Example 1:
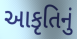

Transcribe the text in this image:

આકૃતિનું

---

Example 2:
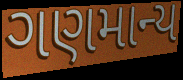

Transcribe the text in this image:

ગણમાન્ય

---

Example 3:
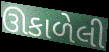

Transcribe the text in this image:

ઊકાળેલી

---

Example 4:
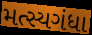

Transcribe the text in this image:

મત્સ્યગંધા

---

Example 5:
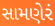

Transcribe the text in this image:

સામણેરં